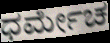
ಧರ್ಮೇಚ